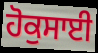
ਹੋਕੁਸਾਈ